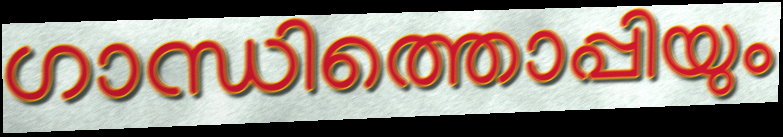
ഗാന്ധിത്തൊപ്പിയും